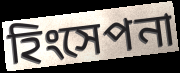
হিংসেপনা